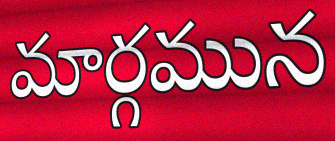
మార్గమున